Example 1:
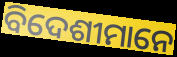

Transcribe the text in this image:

ବିଦେଶୀମାନେ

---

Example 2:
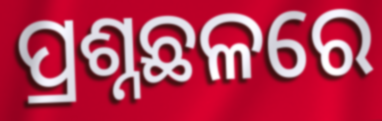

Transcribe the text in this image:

ପ୍ରଶ୍ନଛଳରେ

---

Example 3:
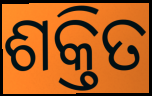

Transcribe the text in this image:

ଶକ୍ତିତ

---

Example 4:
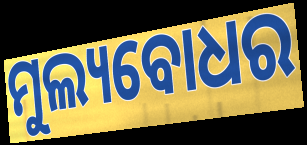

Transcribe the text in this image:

ମୁଲ୍ୟବୋଧର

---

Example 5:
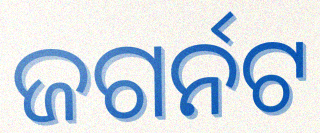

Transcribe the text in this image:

ଜଗର୍ନଟ